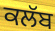
ਕਲੱਬ